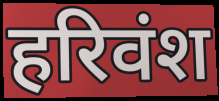
हरिवंश